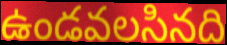
ఉండవలసినది